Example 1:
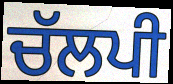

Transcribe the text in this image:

ਚੱਲਪੀ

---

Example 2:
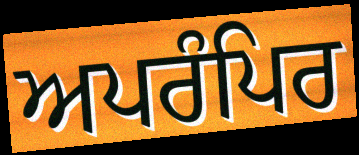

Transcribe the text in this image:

ਅਪਰੰਪਿਰ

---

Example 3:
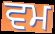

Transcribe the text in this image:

ਵਮ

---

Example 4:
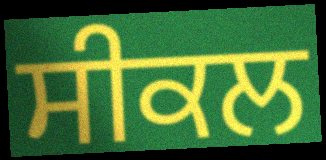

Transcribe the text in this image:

ਸੀਕਲ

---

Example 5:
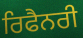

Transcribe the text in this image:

ਰਿਫੈਨਰੀ